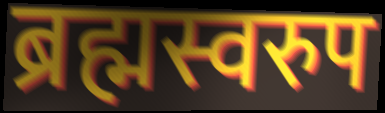
ब्रह्मस्वरुप